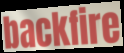
backfire